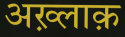
अख़्लाक़